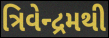
ત્રિવેન્દ્રમથી